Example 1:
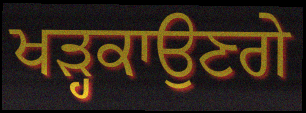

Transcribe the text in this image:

ਖੜ੍ਹਕਾਉਣਗੇ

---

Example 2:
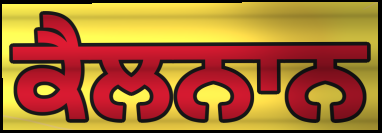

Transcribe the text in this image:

ਕੈਲਨਾਨ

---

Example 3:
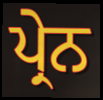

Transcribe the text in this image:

ਪ੍ਰੇਨ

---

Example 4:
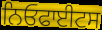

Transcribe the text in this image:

ਨਿਓਫਾਈਟਸ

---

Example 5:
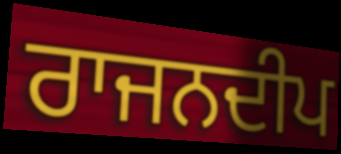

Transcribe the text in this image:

ਰਾਜਨਦੀਪ